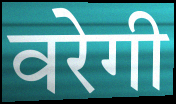
वरेगी